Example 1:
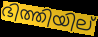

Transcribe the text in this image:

ഭിത്തിയില്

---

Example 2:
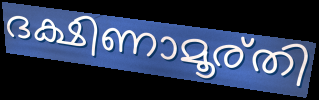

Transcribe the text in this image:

ദക്ഷിണാമൂര്തി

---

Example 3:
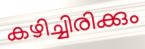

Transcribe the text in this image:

കഴിച്ചിരിക്കും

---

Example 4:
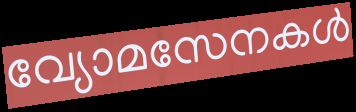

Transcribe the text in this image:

വ്യോമസേനകൾ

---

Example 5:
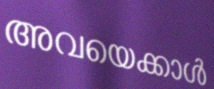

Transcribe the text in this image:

അവയെക്കാൾ